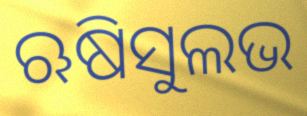
ଋଷିସୁଲଭ